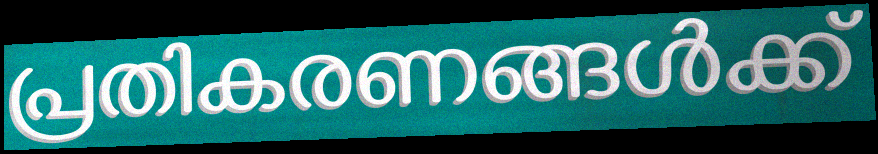
പ്രതികരണങ്ങൾക്ക്